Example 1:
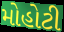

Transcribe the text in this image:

મોહોટી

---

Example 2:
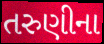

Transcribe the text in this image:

તરુણીના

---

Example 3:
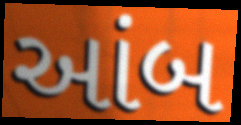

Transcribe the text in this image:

આંબ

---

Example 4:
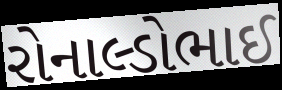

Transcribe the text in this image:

રોનાલ્ડોભાઈ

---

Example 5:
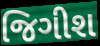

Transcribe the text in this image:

જિગીશ